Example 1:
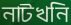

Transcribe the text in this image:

নাটখনি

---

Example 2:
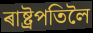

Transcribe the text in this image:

ৰাষ্ট্ৰপতিলৈ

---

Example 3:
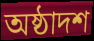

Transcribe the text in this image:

অষ্ঠাদশ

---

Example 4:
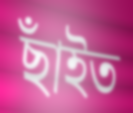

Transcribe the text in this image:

ছাঁইত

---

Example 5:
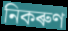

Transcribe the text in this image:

নিকৰুণ